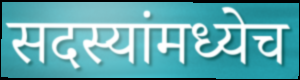
सदस्यांमध्येच